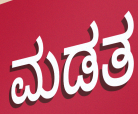
ಮಡತ